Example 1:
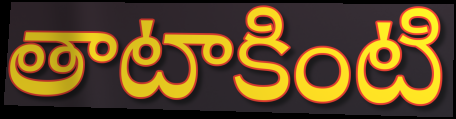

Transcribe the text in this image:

తాటాకింటి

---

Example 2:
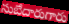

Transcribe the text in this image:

సుబేదారుగారు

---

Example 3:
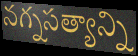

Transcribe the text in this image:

నగ్నసత్యాన్ని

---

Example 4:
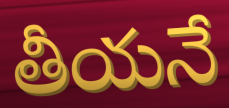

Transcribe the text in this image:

తీయనే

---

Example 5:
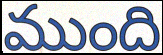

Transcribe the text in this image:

ముంది